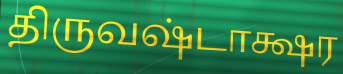
திருவஷ்டாக்ஷர